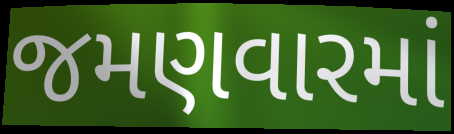
જમણવારમાં